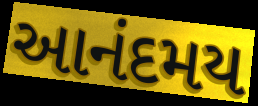
આનંદમય